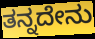
ತನ್ನದೇನು